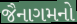
જૈનાગમનો